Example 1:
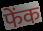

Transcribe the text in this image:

फेंक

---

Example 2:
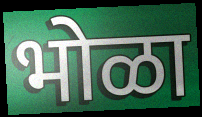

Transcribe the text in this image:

भोळा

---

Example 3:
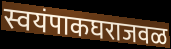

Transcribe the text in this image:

स्वयंपाकघराजवळ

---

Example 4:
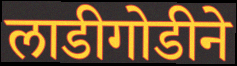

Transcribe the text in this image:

लाडीगोडीने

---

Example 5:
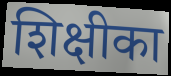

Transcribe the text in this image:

शिक्षीका